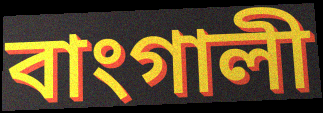
বাংগালী